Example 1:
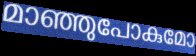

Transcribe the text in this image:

മാഞ്ഞുപോകുമോ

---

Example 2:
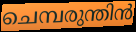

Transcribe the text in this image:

ചെമ്പരുന്തിൻ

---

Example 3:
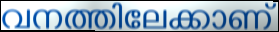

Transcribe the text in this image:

വനത്തിലേക്കാണ്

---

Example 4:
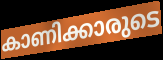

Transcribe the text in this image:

കാണിക്കാരുടെ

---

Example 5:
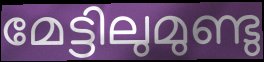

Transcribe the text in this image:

മേട്ടിലുമുണ്ടു